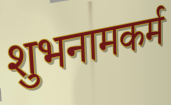
शुभनामकर्म